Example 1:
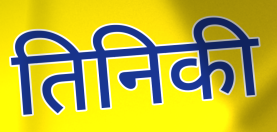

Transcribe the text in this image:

तिनिकी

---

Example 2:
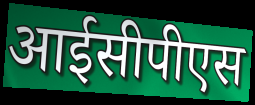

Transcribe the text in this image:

आईसीपीएस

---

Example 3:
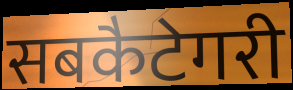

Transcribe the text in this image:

सबकैटेगरी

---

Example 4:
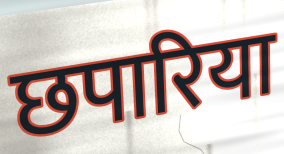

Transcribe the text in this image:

छपारिया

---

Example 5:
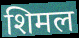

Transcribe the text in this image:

शिमल